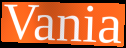
Vania